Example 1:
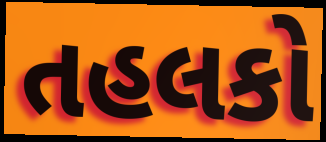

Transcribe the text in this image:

તહલકો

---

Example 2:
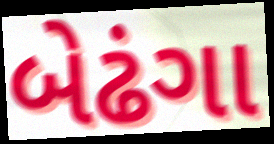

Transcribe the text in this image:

બેઢંગા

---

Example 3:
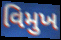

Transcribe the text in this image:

વિમુખ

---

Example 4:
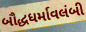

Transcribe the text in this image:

બૌદ્ધધર્માવલંબી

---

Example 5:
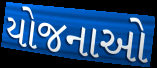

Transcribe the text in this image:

યોજનાઓ